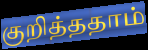
குறித்ததாம்